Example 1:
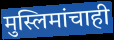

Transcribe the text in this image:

मुस्लिमांचाही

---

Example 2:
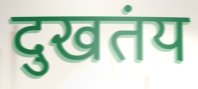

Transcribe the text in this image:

दुखतंय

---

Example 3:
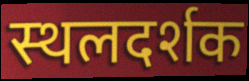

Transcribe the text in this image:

स्थलदर्शक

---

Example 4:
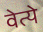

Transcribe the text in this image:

वेत्ये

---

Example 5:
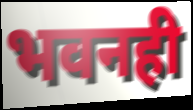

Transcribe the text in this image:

भवनही